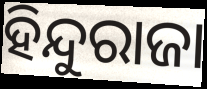
ହିନ୍ଦୁରାଜା